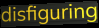
disfiguring